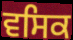
ਵਸਿਕ